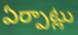
ఏర్పాట్లు